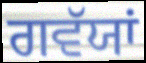
ਗਵੱਯਾਂ